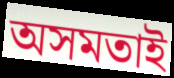
অসমতাই